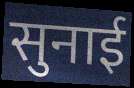
सुनाई